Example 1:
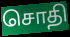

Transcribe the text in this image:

சொதி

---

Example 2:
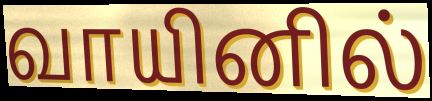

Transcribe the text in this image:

வாயினில்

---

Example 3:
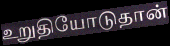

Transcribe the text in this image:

உறுதியோடுதான்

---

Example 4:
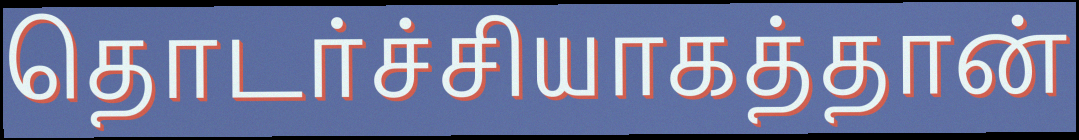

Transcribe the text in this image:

தொடர்ச்சியாகத்தான்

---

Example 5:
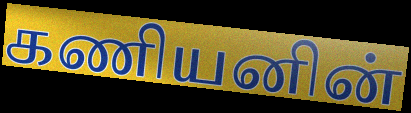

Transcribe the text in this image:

கணியனின்